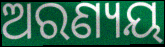
ଅରଣ୍ୟୟ